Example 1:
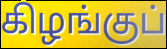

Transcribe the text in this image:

கிழங்குப்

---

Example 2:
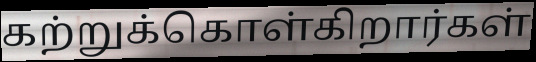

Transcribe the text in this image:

கற்றுக்கொள்கிறார்கள்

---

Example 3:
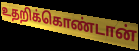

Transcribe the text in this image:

உதறிக்கொண்டான்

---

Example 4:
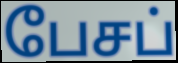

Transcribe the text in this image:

பேசப்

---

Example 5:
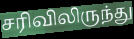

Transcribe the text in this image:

சரிவிலிருந்து